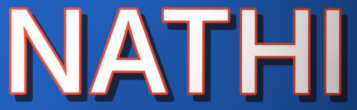
NATHI